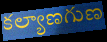
కల్యాణగుణ